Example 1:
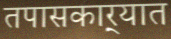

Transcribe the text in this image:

तपासकार्यात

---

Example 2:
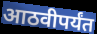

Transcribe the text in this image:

आठवीपर्यंत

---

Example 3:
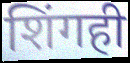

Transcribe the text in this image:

शिंगही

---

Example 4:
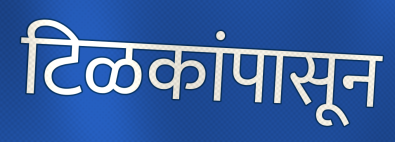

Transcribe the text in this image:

टिळकांपासून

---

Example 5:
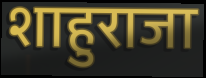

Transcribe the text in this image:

शाहुराजा